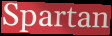
Spartan